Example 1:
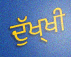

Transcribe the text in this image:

ਦੁੱਖ੍ਖੀ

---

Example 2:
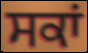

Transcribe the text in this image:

ਸਕਾਂ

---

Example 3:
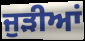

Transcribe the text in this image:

ਜੁੜੀਆਂ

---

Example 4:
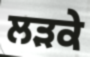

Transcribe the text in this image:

ਲੜਕੇ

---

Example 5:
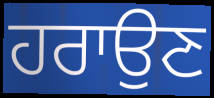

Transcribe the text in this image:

ਹਰਾਉਣ